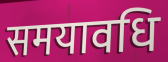
समयावधि